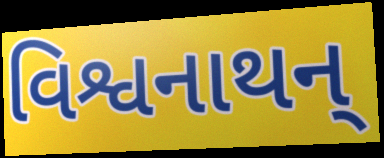
વિશ્વનાથન્